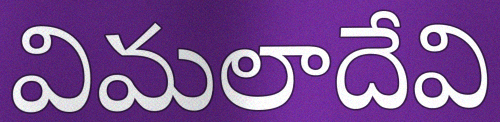
విమలాదేవి